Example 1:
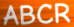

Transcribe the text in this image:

ABCR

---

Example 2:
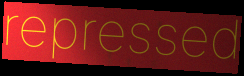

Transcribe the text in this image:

repressed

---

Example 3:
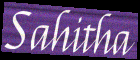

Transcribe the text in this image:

Sahitha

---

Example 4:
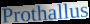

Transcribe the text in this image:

Prothallus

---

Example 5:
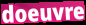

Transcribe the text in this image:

doeuvre